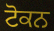
ਟੋਕਨ